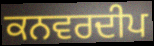
ਕਨਵਰਦੀਪ